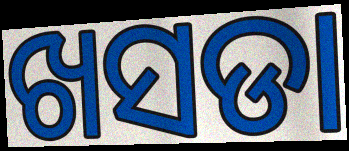
ଖସଡା